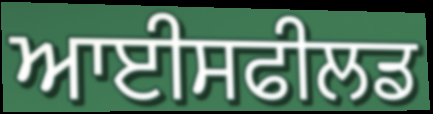
ਆਈਸਫੀਲਡ